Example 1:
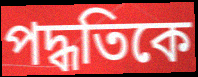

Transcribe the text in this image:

পদ্ধতিকে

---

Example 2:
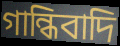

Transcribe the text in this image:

গান্ধিবাদি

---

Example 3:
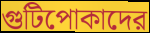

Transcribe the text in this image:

গুটিপোকাদের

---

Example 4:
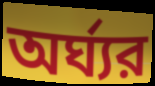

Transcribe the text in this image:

অর্ঘ্যর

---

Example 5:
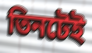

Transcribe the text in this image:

তিনটেই